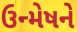
ઉન્મેષને